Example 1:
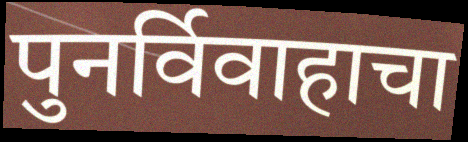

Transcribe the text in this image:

पुनर्विवाहाचा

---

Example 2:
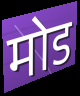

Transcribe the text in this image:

मोड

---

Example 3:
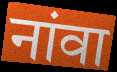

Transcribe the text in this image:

नांवा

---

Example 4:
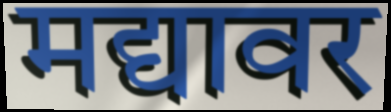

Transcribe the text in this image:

मद्यावर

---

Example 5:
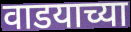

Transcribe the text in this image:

वाडयाच्या